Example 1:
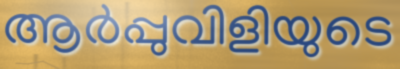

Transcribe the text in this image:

ആർപ്പുവിളിയുടെ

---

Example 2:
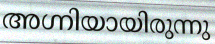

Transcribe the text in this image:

അഗ്നിയായിരുന്നു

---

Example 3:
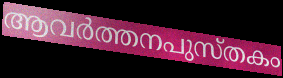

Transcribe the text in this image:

ആവർത്തനപുസ്തകം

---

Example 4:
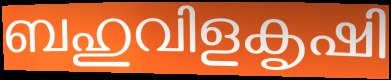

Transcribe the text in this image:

ബഹുവിളകൃഷി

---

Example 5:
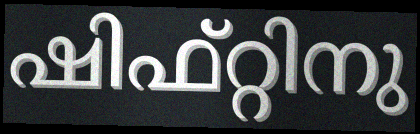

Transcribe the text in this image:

ഷിഫ്റ്റിനു